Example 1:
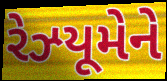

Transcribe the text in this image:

રેઝ્યૂમેને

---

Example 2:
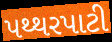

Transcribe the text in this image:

પથ્થરપાટી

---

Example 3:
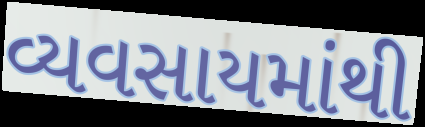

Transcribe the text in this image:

વ્યવસાયમાંથી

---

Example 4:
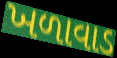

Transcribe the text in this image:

ખળાવાડ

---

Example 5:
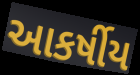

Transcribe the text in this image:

આકર્ષીય